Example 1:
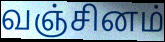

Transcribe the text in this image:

வஞ்சினம்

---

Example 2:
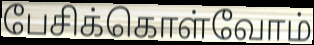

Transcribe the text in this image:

பேசிக்கொள்வோம்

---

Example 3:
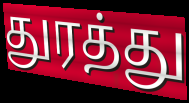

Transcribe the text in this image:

துரத்து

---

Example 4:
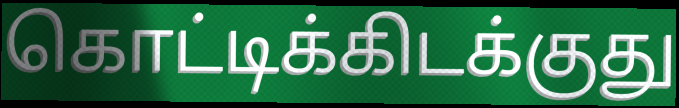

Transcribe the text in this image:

கொட்டிக்கிடக்குது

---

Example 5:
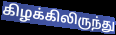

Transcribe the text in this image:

கிழக்கிலிருந்து